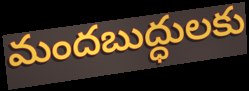
మందబుద్ధులకు